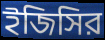
ইজিসির